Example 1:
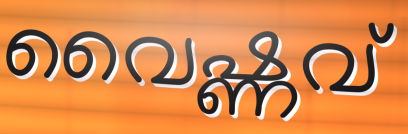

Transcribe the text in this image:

വൈഷ്ണവ്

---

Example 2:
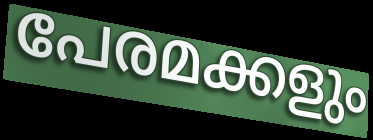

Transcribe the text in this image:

പേരമക്കളും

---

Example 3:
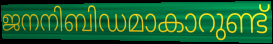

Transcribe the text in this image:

ജനനിബിഡമാകാറുണ്ട്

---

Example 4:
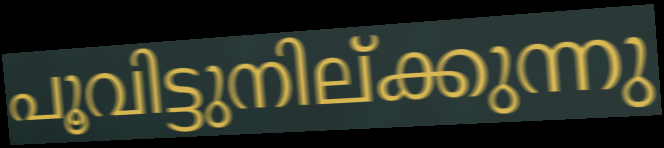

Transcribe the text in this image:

പൂവിട്ടുനില്ക്കുന്നു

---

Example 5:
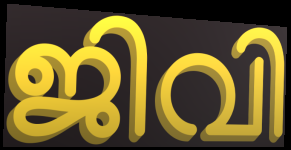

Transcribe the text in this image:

ജിവി